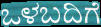
ಒಳಬದಿಗೆ